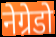
नेग्रेडो